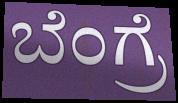
ಬೆಂಗ್ರೆ